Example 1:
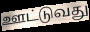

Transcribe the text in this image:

ஊட்டுவது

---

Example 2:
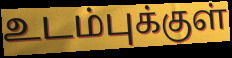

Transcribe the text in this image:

உடம்புக்குள்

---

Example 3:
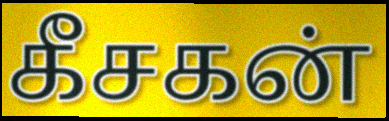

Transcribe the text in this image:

கீசகன்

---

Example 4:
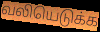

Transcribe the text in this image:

வலியெடுக்க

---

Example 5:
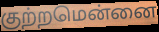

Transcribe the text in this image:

குற்றமென்னை